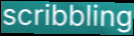
scribbling